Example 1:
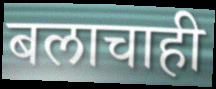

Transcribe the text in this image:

बलाचाही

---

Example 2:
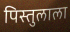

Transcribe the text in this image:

पिस्तुलाला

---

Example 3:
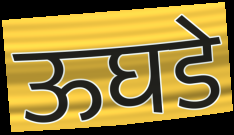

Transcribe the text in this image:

ऊघडे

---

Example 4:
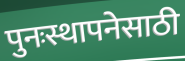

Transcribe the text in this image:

पुनःस्थापनेसाठी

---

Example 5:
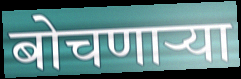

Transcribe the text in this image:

बोचणाऱ्या